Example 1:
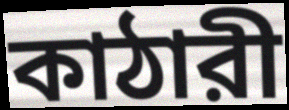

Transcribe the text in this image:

কাঠারী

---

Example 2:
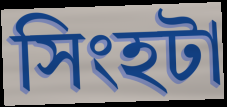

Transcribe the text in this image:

সিংহটা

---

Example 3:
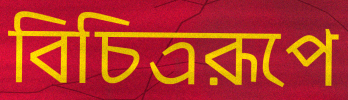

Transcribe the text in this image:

বিচিত্ররূপে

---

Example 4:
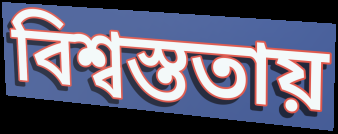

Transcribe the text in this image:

বিশ্বস্ততায়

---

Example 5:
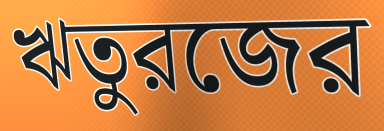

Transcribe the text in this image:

ঋতুরজের